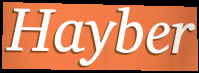
Hayber